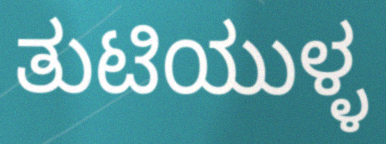
ತುಟಿಯುಳ್ಳ